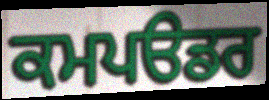
ਕਮਪੳਡਰ